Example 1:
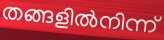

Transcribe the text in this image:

തങ്ങളിൽനിന്ന്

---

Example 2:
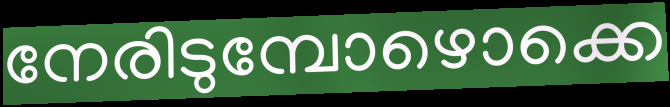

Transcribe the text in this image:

നേരിടുമ്പോഴൊക്കെ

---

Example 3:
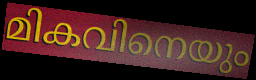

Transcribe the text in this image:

മികവിനെയും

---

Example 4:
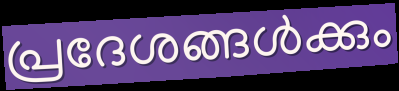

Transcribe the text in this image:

പ്രദേശങ്ങൾക്കും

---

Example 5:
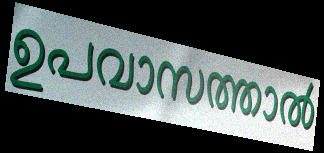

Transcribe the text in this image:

ഉപവാസത്താൽ